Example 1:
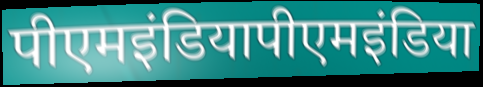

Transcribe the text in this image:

पीएमइंडियापीएमइंडिया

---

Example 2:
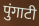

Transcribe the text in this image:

पुंगाटी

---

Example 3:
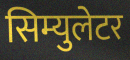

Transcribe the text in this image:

सिम्युलेटर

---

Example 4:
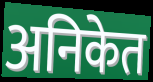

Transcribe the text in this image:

अनिकेत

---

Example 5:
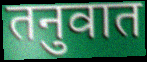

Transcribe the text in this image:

तनुवात